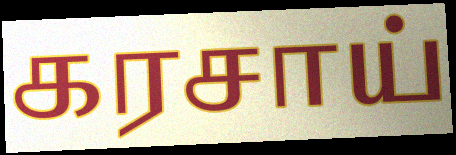
கரசாய்